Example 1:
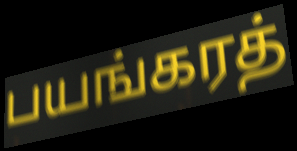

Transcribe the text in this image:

பயங்கரத்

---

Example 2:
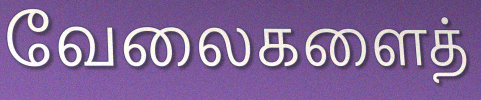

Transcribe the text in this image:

வேலைகளைத்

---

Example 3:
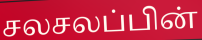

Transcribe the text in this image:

சலசலப்பின்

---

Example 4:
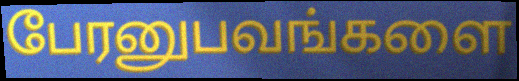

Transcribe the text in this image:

பேரனுபவங்களை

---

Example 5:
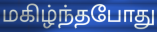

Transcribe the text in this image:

மகிழ்ந்தபோது